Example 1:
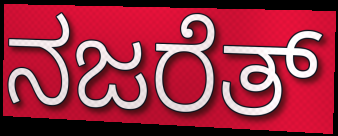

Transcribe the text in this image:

ನಜರೆತ್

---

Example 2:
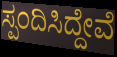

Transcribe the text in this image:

ಸ್ಪಂದಿಸಿದ್ದೇವೆ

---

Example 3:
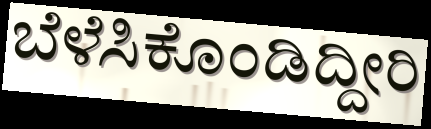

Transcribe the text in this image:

ಬೆಳೆಸಿಕೊಂಡಿದ್ದೀರಿ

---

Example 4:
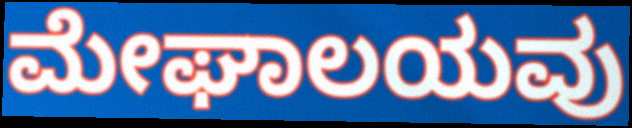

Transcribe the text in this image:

ಮೇಘಾಲಯವು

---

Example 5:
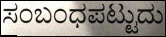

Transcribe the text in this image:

ಸಂಬಂಧಪಟ್ಟುದು